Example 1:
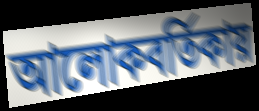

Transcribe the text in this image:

আলোকবর্তিকায়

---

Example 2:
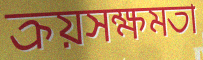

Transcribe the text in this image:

ক্রয়সক্ষমতা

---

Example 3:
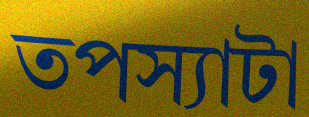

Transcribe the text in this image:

তপস্যাটা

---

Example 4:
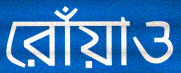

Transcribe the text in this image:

রোঁয়াও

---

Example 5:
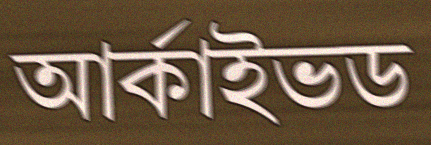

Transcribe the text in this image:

আর্কাইভড